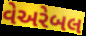
વેઅરેબલ